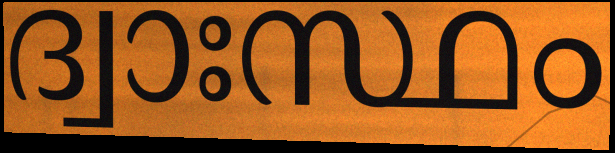
ദ്വാഃസ്ഥം